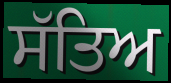
ਸੱਤਿਅ